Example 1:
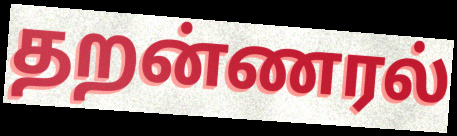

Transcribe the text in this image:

தறன்ணரல்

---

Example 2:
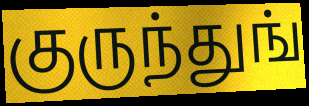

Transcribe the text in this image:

குருந்துங்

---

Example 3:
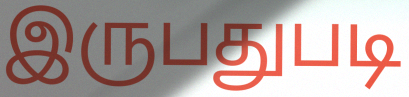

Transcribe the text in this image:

இருபதுபடி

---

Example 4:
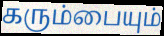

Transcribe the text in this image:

கரும்பையும்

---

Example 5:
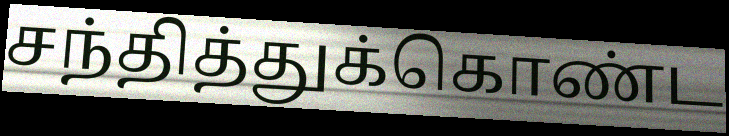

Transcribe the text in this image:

சந்தித்துக்கொண்ட